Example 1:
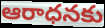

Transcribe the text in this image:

ఆరాధనకు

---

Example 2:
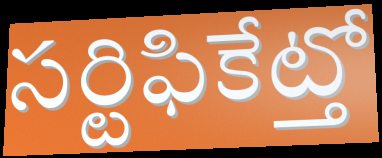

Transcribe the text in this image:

సర్టిఫికేట్తో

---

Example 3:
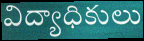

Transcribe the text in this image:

విద్యాధికులు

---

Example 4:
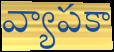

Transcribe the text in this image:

వ్యాపకా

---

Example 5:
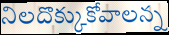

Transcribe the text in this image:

నిలదొక్కుకోవాలన్న